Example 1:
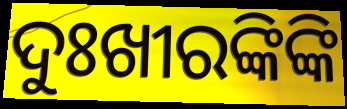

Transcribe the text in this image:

ଦୁଃଖୀରଙ୍କିଙ୍କି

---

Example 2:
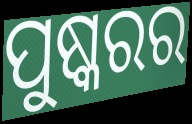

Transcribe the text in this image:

ପୁଷ୍କରର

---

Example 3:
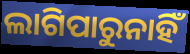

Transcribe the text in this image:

ଲାଗିପାରୁନାହିଁ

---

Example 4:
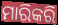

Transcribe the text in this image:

ମାରିକରି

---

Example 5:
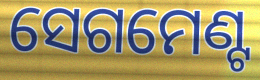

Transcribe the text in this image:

ସେଗମେଣ୍ଟ